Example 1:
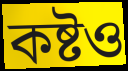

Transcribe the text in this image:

কষ্টও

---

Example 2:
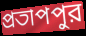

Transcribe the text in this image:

প্রতাপপুর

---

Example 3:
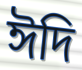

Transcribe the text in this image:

ঈদি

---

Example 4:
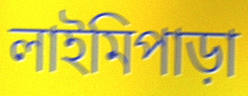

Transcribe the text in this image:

লাইমিপাড়া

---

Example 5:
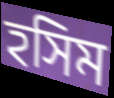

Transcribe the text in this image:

হসিম